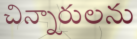
చిన్నారులను